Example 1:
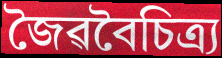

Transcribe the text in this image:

জৈৱবৈচিত্ৰ্য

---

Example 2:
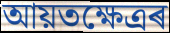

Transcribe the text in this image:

আয়তক্ষেত্ৰৰ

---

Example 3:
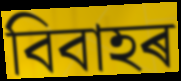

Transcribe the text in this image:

বিবাহৰ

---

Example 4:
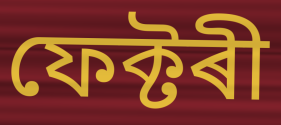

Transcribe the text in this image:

ফেক্টৰী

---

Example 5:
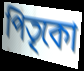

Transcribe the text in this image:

পিতৃকো